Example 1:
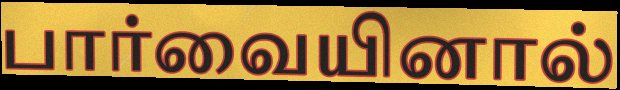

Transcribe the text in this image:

பார்வையினால்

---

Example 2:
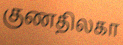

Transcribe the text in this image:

குணதிலகா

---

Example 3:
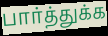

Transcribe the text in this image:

பார்த்துக்க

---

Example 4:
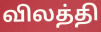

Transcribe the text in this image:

விலத்தி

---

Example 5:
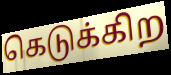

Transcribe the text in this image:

கெடுக்கிற